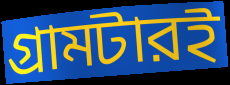
গ্রামটারই